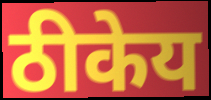
ठीकेय